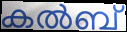
കൽബ്